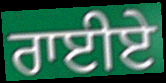
ਰਾਈਏ